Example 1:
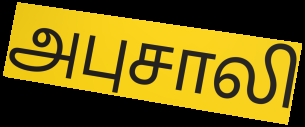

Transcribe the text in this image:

அபுசாலி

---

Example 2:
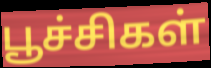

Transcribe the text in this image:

பூச்சிகள்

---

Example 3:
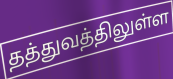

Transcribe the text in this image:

தத்துவத்திலுள்ள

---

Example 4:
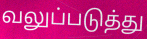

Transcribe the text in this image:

வலுப்படுத்து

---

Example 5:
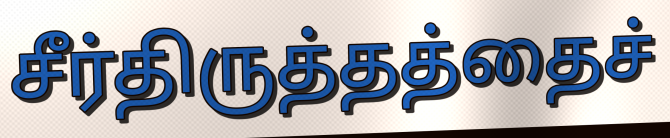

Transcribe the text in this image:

சீர்திருத்தத்தைச்